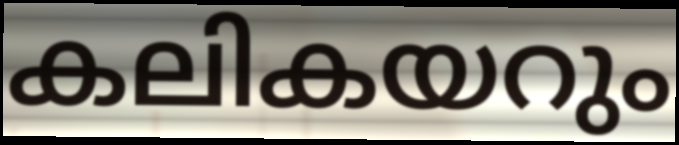
കലികയറും